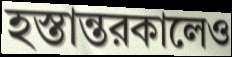
হস্তান্তরকালেও